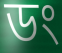
ডং